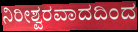
ನಿರೀಶ್ವರವಾದದಿಂದ